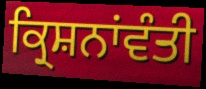
ਕ੍ਰਿਸ਼ਨਾਂਵੰਤੀ